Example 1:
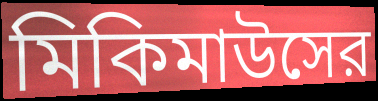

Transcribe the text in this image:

মিকিমাউসের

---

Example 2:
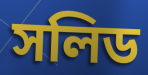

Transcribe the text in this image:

সলিড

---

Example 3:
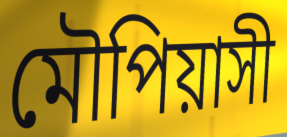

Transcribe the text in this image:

মৌপিয়াসী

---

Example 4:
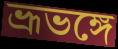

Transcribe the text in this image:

ভ্রূভঙ্গে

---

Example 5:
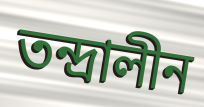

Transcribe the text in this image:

তন্দ্রালীন